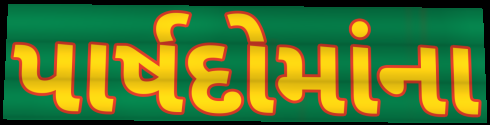
પાર્ષદોમાંના